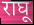
राघू